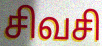
சிவசி